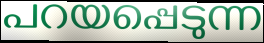
പറയപ്പെടുന്ന